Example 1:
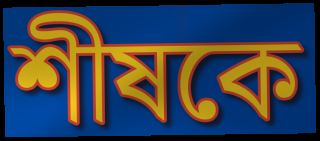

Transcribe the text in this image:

শীষকে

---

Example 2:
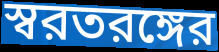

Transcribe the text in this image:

স্বরতরঙ্গের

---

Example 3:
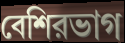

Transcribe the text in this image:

বেশিরভাগ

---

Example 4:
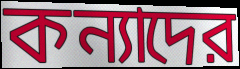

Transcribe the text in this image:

কন্যাদের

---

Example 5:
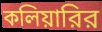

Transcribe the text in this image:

কলিয়ারির